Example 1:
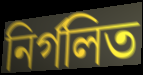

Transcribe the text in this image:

নির্গলিত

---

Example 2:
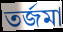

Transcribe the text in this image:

তর্জমা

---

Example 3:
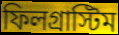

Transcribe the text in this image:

ফিলগ্রাস্টিম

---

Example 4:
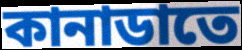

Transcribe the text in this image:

কানাডাতে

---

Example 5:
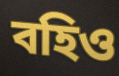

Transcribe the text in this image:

বহিও